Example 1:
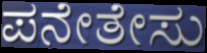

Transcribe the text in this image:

ಪನೇತೇಸು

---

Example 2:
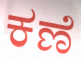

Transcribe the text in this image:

ಕಣೆ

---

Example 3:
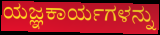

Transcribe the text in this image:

ಯಜ್ಞಕಾರ್ಯಗಳನ್ನು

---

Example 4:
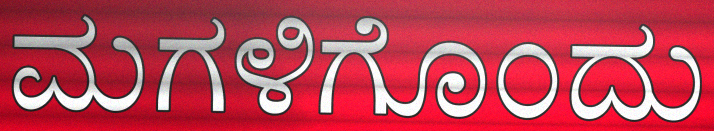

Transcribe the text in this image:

ಮಗಳಿಗೊಂದು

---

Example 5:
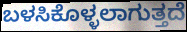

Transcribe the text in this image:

ಬಳಸಿಕೊಳ್ಳಲಾಗುತ್ತದೆ